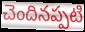
చెందినప్పటి